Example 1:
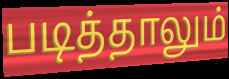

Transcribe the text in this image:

படித்தாலும்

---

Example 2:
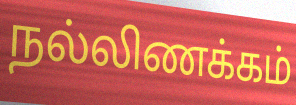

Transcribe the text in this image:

நல்லிணக்கம்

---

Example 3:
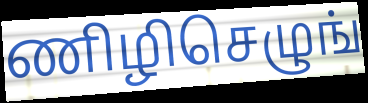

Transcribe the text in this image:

ணிழிசெழுங்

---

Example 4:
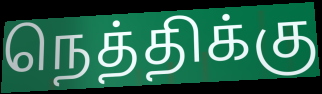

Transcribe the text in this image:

நெத்திக்கு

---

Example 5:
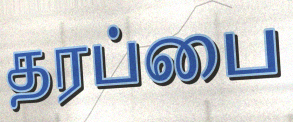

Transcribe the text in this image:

தரப்பை